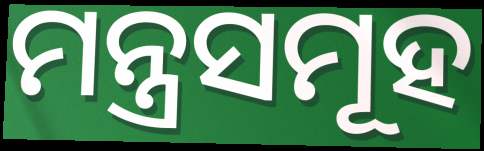
ମନ୍ତ୍ରସମୂହ